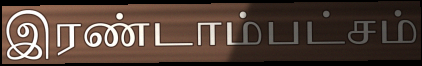
இரண்டாம்பட்சம்